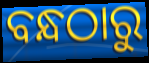
ବନ୍ଧଠାରୁ